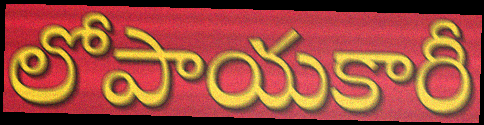
లోపాయకారీ